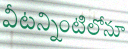
వీటన్నింటిలోనూ